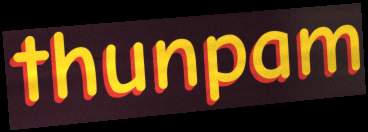
thunpam